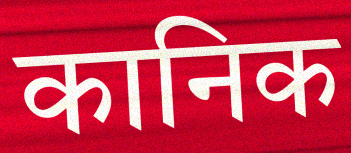
कानिक